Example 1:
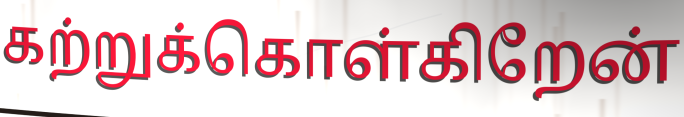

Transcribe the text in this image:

கற்றுக்கொள்கிறேன்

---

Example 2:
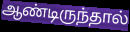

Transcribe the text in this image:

ஆண்டிருந்தால்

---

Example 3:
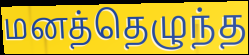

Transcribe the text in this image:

மனத்தெழுந்த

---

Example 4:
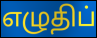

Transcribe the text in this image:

எழுதிப்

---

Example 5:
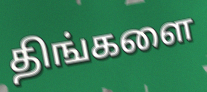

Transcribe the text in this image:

திங்களை